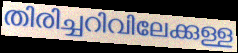
തിരിച്ചറിവിലേക്കുള്ള